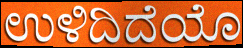
ಉಳಿದಿದೆಯೊ